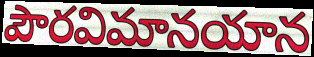
పౌరవిమానయాన